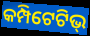
କମ୍ପିଟେଟିଭ୍